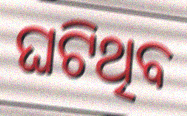
ଘଟିଥିବ